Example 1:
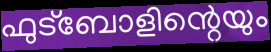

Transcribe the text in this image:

ഫുട്ബോളിന്റെയും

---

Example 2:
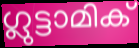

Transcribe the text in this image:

ഗ്ലുട്ടാമിക്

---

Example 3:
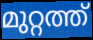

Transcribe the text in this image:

മുറ്റത്ത്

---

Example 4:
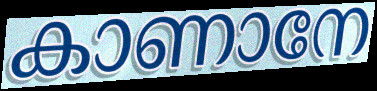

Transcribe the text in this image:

കാണാനേ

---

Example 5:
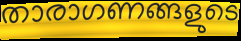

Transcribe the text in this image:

താരാഗണങ്ങളുടെ